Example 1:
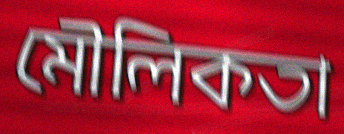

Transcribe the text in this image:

মৌলিকতা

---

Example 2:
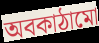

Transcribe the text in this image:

অবকাঠামো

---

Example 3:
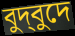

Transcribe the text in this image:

বুদ্‌বুদে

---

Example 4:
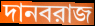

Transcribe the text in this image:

দানবরাজ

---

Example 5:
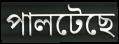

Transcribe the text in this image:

পালটেছে